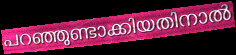
പറഞ്ഞുണ്ടാക്കിയതിനാൽ